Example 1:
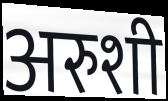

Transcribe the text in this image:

अरुशी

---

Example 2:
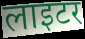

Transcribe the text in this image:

लाइटर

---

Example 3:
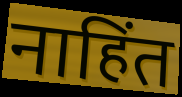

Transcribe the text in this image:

नाहिंत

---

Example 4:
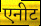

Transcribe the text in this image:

एनीट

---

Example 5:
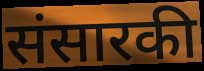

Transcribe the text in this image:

संसारकी